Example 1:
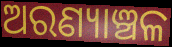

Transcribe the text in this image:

ଅରଣ୍ୟାଞ୍ଚଳ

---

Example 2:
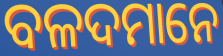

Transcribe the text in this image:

ବଳଦମାନେ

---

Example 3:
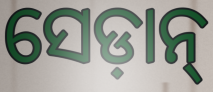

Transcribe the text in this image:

ସେଡ଼ାନ୍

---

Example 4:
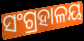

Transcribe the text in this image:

ସଂଗ୍ରହାଳୟ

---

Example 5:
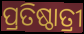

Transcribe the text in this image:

ପ୍ରତିଷ୍ଠାତ୍ରୀ